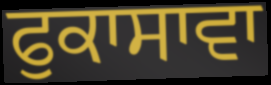
ਫੁਕਾਸਾਵਾ